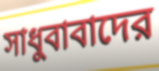
সাধুবাবাদের